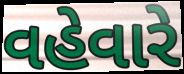
વહેવારે